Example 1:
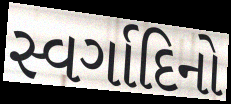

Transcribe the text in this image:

સ્વર્ગાદિનો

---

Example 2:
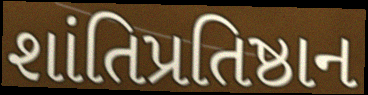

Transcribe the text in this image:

શાંતિપ્રતિષ્ઠાન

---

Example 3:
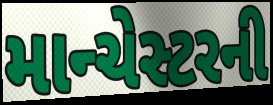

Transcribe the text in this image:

માન્ચેસ્ટરની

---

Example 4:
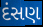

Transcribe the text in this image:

દંસણ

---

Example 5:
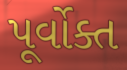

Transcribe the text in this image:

પૂર્વોક્ત